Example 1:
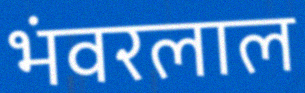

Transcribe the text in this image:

भंवरलाल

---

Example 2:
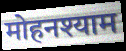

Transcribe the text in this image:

मोहनश्याम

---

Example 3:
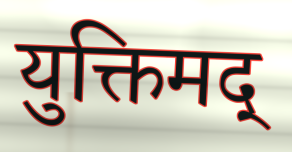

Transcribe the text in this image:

युक्तिमद्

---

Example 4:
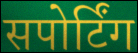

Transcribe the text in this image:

सपोर्टिंग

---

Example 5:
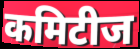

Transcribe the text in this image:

कमिटीज